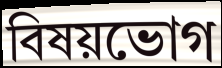
বিষয়ভোগ